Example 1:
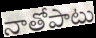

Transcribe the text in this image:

నాతోపాటు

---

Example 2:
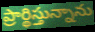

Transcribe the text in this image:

ప్రార్థిస్తున్నాను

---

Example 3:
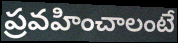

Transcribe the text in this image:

ప్రవహించాలంటే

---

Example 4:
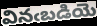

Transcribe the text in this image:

వినఁబడియె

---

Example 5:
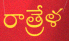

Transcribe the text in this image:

రాత్రేళ